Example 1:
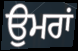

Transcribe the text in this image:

ਉੁਮਰਾਂ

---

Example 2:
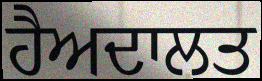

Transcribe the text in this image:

ਹੈਅਦਾਲਤ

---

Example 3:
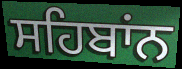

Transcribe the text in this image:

ਸਹਿਬਾਂਨ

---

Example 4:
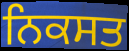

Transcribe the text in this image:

ਨਿਕਸਤ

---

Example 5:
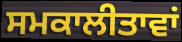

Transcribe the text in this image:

ਸਮਕਾਲੀਤਾਵਾਂ